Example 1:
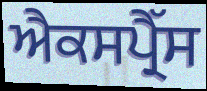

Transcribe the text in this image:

ਐਕਸਪ੍ਰੈੱਸ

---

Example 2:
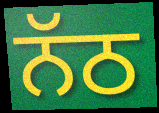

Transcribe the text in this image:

ਨੱਠ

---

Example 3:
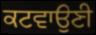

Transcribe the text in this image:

ਕਟਵਾਉਣੀ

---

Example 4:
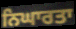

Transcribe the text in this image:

ਨਿਘਾਰਤਾ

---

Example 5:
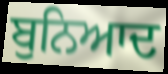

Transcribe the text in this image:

ਬੁਨਿਆਦ